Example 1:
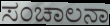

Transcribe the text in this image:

ಸಂಚಾಲನಾ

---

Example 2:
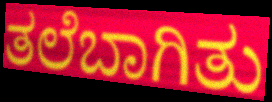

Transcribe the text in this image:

ತಲೆಬಾಗಿತು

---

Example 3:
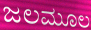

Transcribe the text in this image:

ಜಲಮೂಲ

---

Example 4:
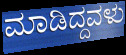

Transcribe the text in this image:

ಮಾಡಿದ್ದವಳು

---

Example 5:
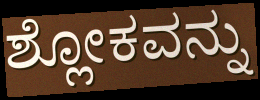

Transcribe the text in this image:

ಶ್ಲೋಕವನ್ನು